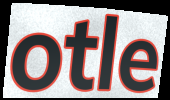
otle